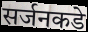
सर्जनकडे